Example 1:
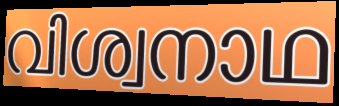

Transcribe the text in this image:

വിശ്വനാഥ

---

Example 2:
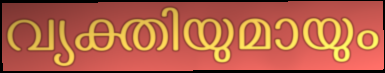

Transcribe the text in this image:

വ്യക്തിയുമായും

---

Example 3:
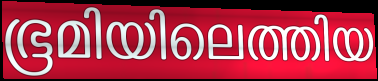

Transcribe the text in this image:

ഭൂമിയിലെത്തിയ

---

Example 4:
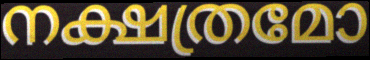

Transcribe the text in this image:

നക്ഷത്രമോ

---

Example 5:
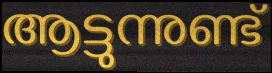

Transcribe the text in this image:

ആട്ടുന്നുണ്ട്